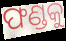
ଫଣ୍ଡକୁ